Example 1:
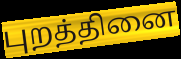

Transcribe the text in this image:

புறத்தினை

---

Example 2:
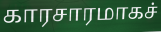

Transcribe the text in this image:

காரசாரமாகச்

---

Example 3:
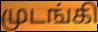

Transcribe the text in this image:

முடங்கி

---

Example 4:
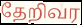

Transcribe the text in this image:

தேறிவர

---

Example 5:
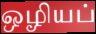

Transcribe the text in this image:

ஒழியப்